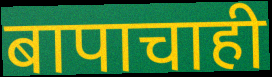
बापाचाही